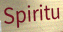
Spiritu